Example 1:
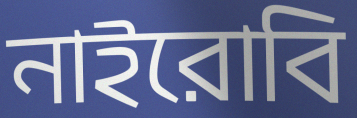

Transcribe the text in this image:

নাইরোবি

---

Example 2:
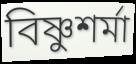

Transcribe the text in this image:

বিষ্ণুশর্মা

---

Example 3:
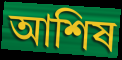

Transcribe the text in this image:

আশিষ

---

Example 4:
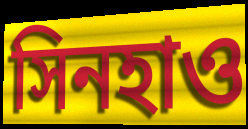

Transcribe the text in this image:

সিনহাও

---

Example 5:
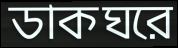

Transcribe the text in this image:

ডাকঘরে